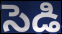
సెడి